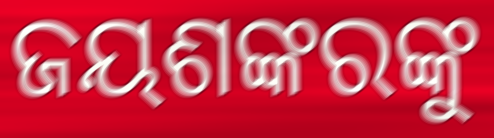
ଜୟଶଙ୍କରଙ୍କୁ